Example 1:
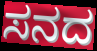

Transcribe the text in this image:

ಸನದ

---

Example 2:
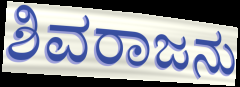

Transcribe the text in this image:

ಶಿವರಾಜನು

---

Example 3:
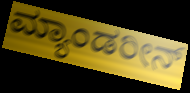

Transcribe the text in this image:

ಮ್ಯಾಂಡರೀನ್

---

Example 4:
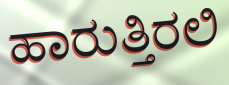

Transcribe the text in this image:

ಹಾರುತ್ತಿರಲಿ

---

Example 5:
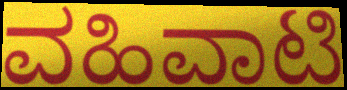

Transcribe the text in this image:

ವಹಿವಾಟಿ